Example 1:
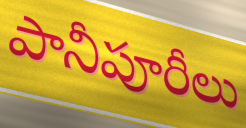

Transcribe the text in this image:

పానీపూరీలు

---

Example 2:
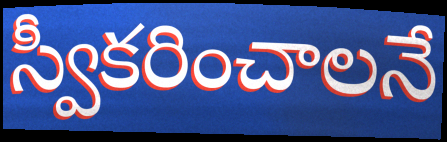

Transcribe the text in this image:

స్వీకరించాలనే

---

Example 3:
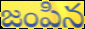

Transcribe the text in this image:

జంపిన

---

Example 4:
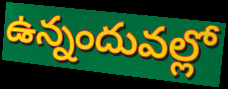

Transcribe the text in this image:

ఉన్నందువల్లో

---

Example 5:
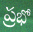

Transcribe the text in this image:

ప్రభో